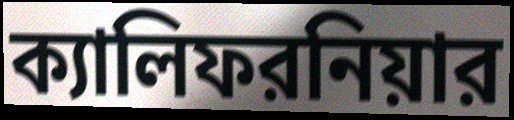
ক্যালিফরনিয়ার